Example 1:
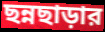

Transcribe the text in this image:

ছন্নছাড়ার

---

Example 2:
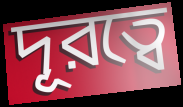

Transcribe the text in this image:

দূরত্বে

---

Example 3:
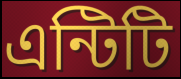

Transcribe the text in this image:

এন্টিটি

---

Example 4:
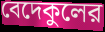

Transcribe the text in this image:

বেদেকুলের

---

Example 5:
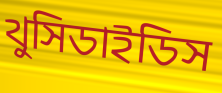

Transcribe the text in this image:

থুসিডাইডিস